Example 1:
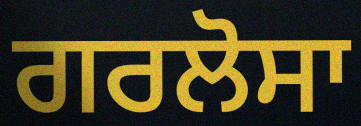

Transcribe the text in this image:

ਗਰਲੋਸਾ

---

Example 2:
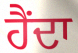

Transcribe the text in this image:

ਹੈਂਦਾ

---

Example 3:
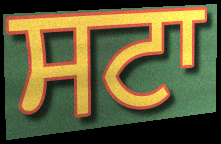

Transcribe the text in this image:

ਸਟਾ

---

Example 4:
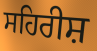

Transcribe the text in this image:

ਸਹਿਰੀਸ਼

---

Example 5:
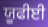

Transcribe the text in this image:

ਯੂਫੀਈ